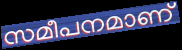
സമീപനമാണ്